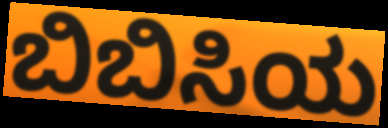
ಬಿಬಿಸಿಯ